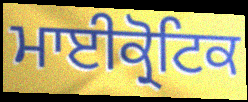
ਮਾਈਕ੍ਰੋਟਿਕ